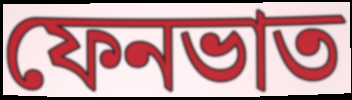
ফেনভাত